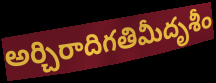
అర్చిరాదిగతిమీదృశీం